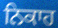
ਨਿਕਾਹ